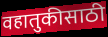
वहातुकीसाठी